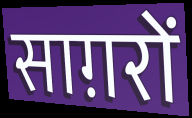
साग़रों